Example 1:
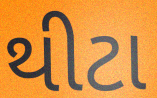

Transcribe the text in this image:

થીટા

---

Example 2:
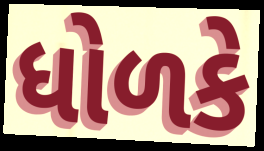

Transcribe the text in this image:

ધોળકે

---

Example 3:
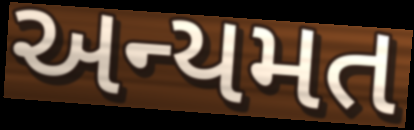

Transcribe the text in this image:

અન્યમત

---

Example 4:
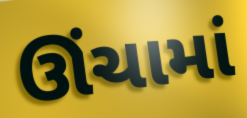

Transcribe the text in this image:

ઊંચામાં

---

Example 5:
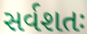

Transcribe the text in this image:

સર્વશતઃ